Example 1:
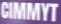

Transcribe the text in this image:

CIMMYT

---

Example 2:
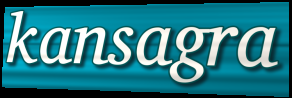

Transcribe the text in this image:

kansagra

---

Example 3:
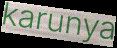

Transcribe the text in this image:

karunya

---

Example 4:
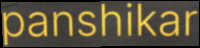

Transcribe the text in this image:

panshikar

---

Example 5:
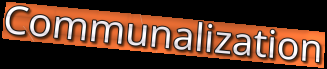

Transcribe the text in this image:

Communalization